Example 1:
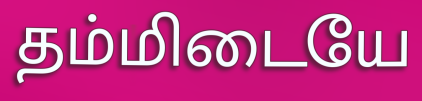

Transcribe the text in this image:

தம்மிடையே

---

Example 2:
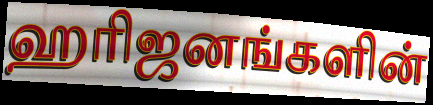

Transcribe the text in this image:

ஹரிஜனங்களின்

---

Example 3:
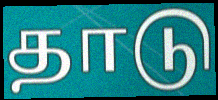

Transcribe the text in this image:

தாடு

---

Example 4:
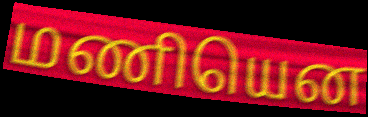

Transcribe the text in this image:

மணியென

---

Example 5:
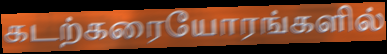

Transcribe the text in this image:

கடற்கரையோரங்களில்